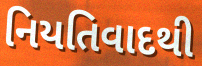
નિયતિવાદથી